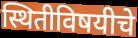
स्थितीविषयीचे